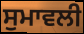
ਸੁਮਾਵਲੀ